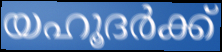
യഹൂദർക്ക്